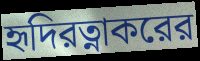
হৃদিরত্নাকরের